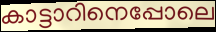
കാട്ടാറിനെപ്പോലെ